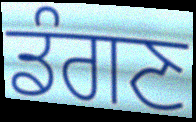
ਡੰਗਣ